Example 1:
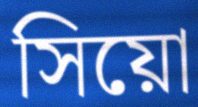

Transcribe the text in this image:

সিয়ো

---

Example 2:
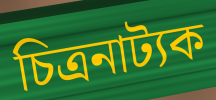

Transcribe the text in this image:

চিত্ৰনাট্যক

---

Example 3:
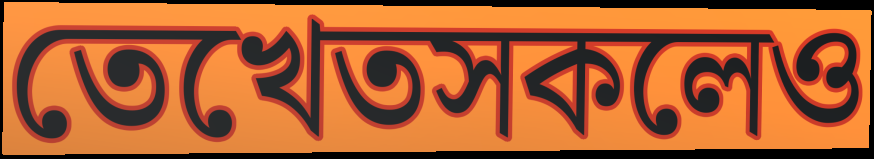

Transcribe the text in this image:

তেখেতসকলেও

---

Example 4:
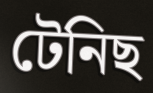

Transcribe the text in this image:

টেনিছ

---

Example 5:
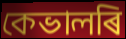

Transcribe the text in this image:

কেভালৰি